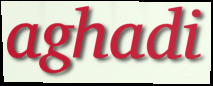
aghadi